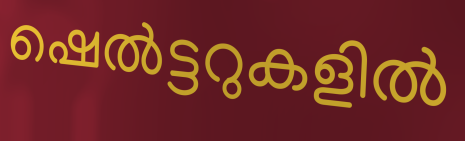
ഷെൽട്ടറുകളിൽ